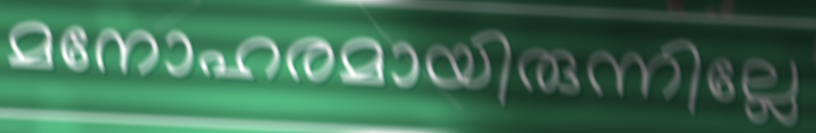
മനോഹരമായിരുന്നില്ലേ